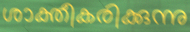
ശാക്തീകരിക്കുന്നു